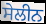
ਸੇਲੀਨ